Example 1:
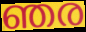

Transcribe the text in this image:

ഞര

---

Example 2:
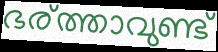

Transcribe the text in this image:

ഭര്ത്താവുണ്ട്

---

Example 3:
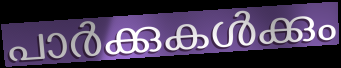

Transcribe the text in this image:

പാർക്കുകൾക്കും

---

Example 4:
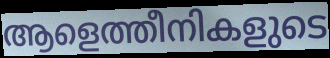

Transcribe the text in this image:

ആളെത്തീനികളുടെ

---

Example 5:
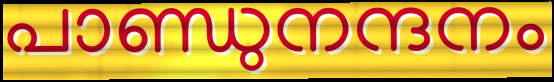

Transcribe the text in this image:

പാണ്ഡുനന്ദനം